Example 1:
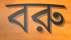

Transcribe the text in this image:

বরু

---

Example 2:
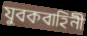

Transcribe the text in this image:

যুবকবাহিনী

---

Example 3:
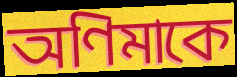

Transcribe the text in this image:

অণিমাকে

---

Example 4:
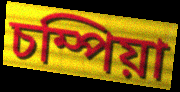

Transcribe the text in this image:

চম্পিয়া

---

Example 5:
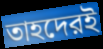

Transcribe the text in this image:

তাহদেরই